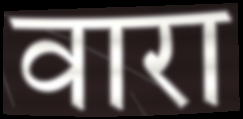
वारा